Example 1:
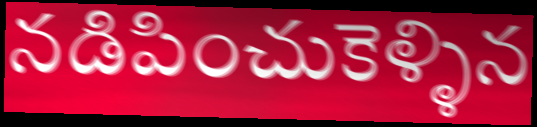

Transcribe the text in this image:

నడిపించుకెళ్ళిన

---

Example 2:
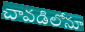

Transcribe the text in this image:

చావడిలోనూ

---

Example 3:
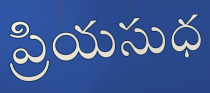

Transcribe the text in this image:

ప్రియసుధ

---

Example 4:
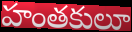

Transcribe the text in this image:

హంతకులూ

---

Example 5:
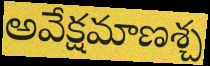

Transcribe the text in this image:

అవేక్షమాణశ్చ